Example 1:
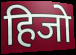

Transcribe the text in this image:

हिजो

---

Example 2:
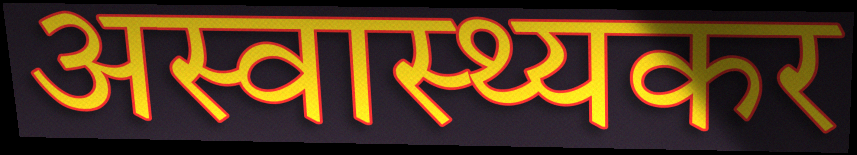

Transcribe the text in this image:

अस्वास्थ्यकर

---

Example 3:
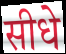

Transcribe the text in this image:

सीधे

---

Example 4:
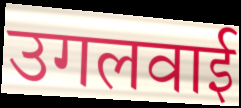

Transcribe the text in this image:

उगलवाई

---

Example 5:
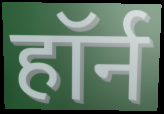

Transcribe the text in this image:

हॉर्न